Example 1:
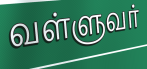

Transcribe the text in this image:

வள்ளுவர்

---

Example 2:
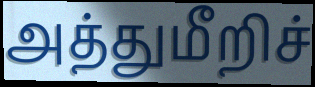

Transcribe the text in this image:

அத்துமீறிச்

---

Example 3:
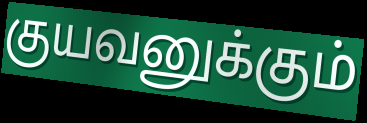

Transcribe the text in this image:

குயவனுக்கும்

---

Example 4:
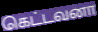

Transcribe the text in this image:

கெட்டவனா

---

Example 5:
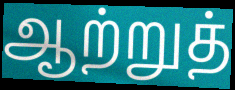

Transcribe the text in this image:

ஆற்றுத்